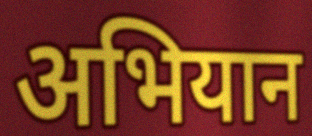
अभियान